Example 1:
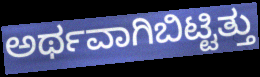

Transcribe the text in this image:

ಅರ್ಥವಾಗಿಬಿಟ್ಟಿತ್ತು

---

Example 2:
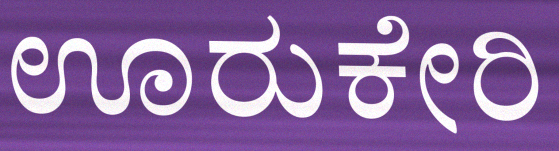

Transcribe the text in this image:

ಊರುಕೇರಿ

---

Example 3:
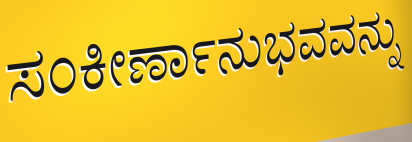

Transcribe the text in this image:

ಸಂಕೀರ್ಣಾನುಭವವನ್ನು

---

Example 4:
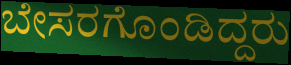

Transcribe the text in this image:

ಬೇಸರಗೊಂಡಿದ್ದರು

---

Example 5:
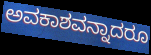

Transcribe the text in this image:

ಅವಕಾಶವನ್ನಾದರೂ